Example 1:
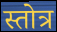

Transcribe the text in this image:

स्तोत्र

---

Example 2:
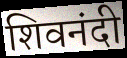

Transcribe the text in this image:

शिवनंदी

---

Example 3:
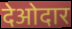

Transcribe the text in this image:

देओदार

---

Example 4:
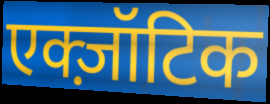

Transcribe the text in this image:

एक्ज़ॉटिक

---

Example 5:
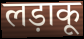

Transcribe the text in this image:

लड़ाकू